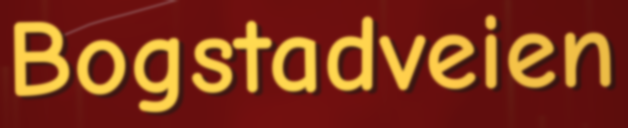
Bogstadveien